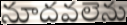
నూదవలెను